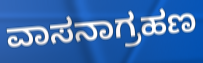
ವಾಸನಾಗ್ರಹಣ